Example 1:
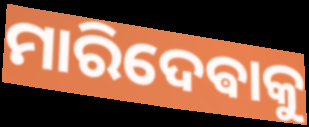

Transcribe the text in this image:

ମାରିଦେଵାକୁ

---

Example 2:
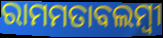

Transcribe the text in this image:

ରାମମତାବଲମ୍ବୀ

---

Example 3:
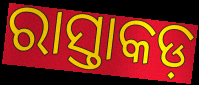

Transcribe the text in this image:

ରାସ୍ତାକଡ଼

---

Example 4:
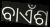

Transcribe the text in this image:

ବାଏଁଶ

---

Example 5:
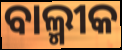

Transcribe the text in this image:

ବାଲ୍ମୀକ